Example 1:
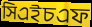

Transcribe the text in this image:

সিএইচএফ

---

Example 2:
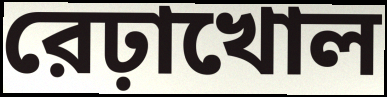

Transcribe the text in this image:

রেঢ়াখোল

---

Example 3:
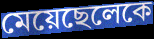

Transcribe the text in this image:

মেয়েছেলেকে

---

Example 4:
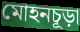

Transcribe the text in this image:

মোহনচূড়া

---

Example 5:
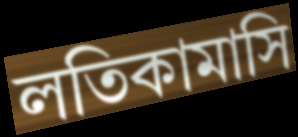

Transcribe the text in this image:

লতিকামাসি